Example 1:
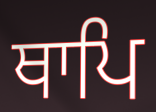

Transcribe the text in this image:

ਥਾਪਿ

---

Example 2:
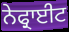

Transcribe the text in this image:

ਨੇਫ੍ਰਾਈਟ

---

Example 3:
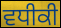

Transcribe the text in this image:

ਵਧੀਕੀ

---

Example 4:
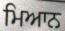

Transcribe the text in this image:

ਮਿਆਨ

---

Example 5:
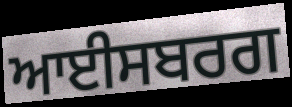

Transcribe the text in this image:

ਆਈਸਬਰਗ